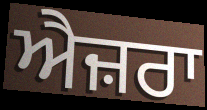
ਐਜ਼ਰਾ